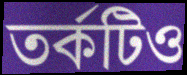
তর্কটিও